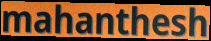
mahanthesh